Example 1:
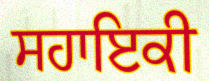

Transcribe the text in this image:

ਸਹਾਇਕੀ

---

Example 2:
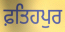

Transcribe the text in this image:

ਫ਼ਤਿਹਪੁਰ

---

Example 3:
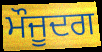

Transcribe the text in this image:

ਮੌਜੂਦਗ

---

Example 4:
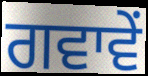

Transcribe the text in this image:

ਗਵਾਵੇਂ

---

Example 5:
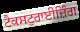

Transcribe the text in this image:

ਟੈਕਸਟੁਰਾਈਜ਼ਿੰਗ